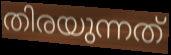
തിരയുന്നത്